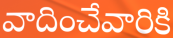
వాదించేవారికి